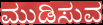
ಮುಡಿಸುವ